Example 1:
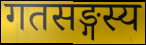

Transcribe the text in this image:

गतसङ्गस्य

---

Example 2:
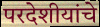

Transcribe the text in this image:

परदेशीयांचे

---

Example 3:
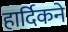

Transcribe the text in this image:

हार्दिकने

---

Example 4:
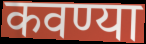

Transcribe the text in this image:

कवण्या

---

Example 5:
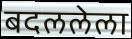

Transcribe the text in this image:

बदललेला